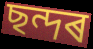
ছন্দৰ